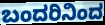
ಬಂದರಿನಿಂದ